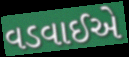
વડવાઈએ